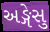
અઙ્ગેસુ